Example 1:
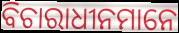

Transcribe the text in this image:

ବିଚାରାଧୀନମାନେ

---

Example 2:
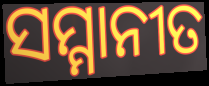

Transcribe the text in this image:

ସମ୍ମାନୀତ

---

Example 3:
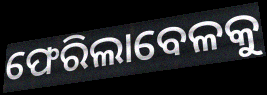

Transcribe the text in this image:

ଫେରିଲାବେଳକୁ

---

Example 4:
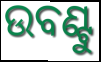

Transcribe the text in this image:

ଉବଣ୍ଟୁ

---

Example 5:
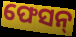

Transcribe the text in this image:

ଫେସନ୍